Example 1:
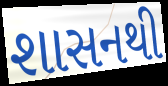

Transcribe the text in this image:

શાસનથી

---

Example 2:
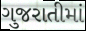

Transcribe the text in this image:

ગુજરાતીમાં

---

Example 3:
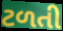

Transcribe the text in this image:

ટળતી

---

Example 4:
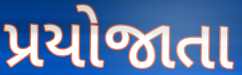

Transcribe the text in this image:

પ્રયોજાતા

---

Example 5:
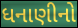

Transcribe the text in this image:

ધનાણીનો